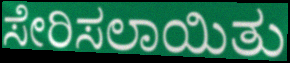
ಸೇರಿಸಲಾಯಿತು